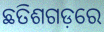
ଛତିଶଗଡ଼ରେ